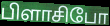
பிளாசிபோ